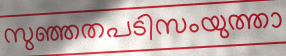
സുഞ്ഞതപടിസംയുത്താ